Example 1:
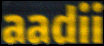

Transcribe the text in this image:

aadii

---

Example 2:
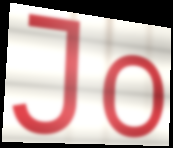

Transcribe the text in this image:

Jo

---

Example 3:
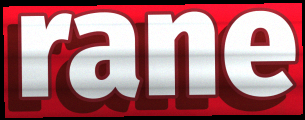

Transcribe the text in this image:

rane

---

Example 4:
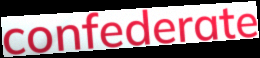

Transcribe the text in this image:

confederate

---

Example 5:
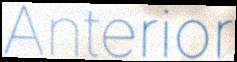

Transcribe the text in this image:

Anterior